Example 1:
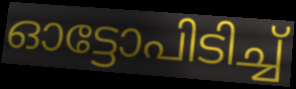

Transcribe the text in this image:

ഓട്ടോപിടിച്ച്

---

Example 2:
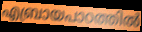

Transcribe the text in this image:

എബ്രായപാഠത്തിൽ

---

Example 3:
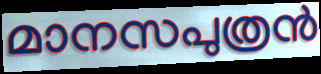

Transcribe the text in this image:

മാനസപുത്രൻ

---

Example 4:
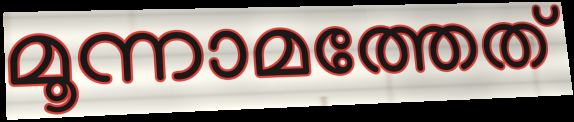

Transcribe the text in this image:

മൂന്നാമത്തേത്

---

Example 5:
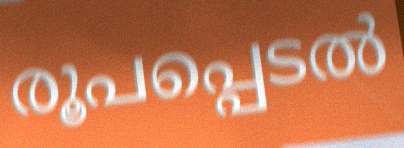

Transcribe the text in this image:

രൂപപ്പെടൽ